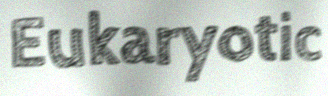
Eukaryotic